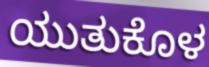
ಯುತುಕೊಳ